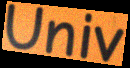
Univ